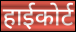
हाईकोर्ट